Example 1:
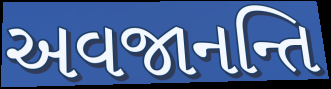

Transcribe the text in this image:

અવજાનન્તિ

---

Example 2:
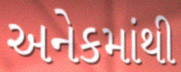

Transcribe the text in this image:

અનેકમાંથી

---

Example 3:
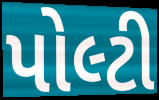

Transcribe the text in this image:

પોલ્ટી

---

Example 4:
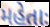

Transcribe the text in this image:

મહેતાઃ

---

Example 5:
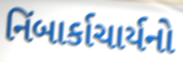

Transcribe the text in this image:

નિંબાર્કાચાર્યનો